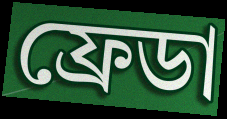
ফ্রেডা